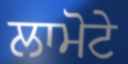
ਲਾਮੋਟੇ